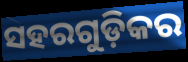
ସହରଗୁଡ଼ିକର